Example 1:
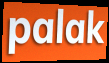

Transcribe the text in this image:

palak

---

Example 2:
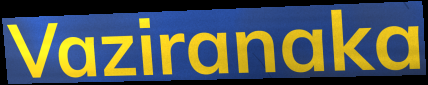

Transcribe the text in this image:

Vaziranaka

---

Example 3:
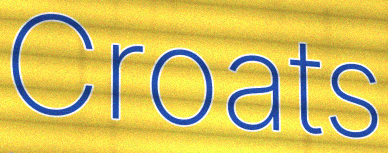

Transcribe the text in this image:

Croats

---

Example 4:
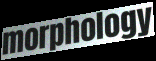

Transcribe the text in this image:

morphology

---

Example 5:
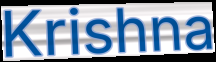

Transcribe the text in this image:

Krishna